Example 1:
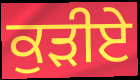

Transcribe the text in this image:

ਕੁੜੀਏ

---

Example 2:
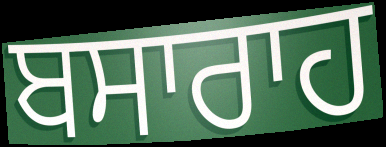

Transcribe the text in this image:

ਬਸਾਰਾਹ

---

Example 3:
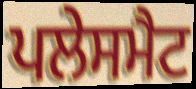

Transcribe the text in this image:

ਪਲੇਸਮੈਟ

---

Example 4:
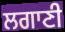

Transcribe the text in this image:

ਲਗਾਣੀ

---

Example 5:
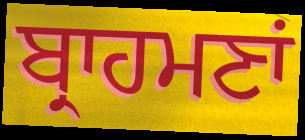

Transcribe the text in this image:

ਬ੍ਰਾਹਮਣਾਂ